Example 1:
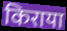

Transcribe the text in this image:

किराया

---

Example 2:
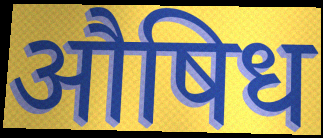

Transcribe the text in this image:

औषिध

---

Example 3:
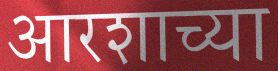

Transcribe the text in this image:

आरशाच्या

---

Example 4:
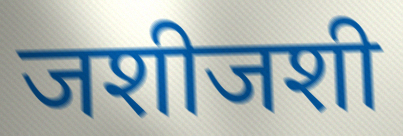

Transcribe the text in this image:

जशीजशी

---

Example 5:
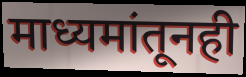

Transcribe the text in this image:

माध्यमांतूनही